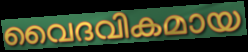
വൈദവികമായ